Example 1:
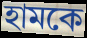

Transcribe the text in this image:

হামকে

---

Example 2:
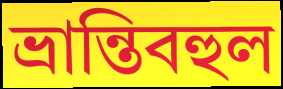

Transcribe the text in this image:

ভ্রান্তিবহুল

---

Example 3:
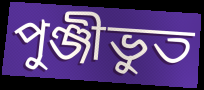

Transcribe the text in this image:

পুঞ্জীভুত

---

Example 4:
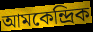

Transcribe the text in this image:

আমকেন্দ্রিক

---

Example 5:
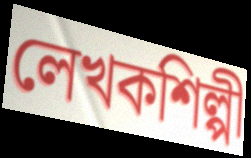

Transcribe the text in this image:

লেখকশিল্পী